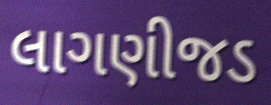
લાગણીજડ